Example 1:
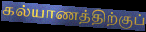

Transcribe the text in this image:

கல்யாணத்திற்குப்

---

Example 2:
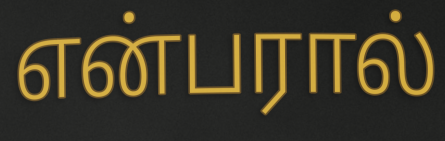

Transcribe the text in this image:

என்பரால்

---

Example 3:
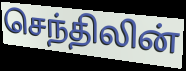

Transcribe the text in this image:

செந்திலின்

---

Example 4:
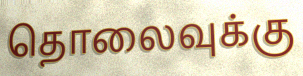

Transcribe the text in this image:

தொலைவுக்கு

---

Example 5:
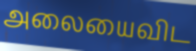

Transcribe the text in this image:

அலையைவிட